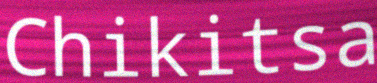
Chikitsa